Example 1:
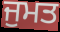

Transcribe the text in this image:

ਜੁਮਤ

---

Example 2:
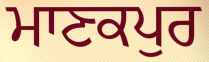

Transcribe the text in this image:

ਮਾਣਕਪੁਰ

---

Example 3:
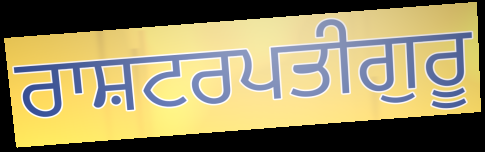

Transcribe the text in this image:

ਰਾਸ਼ਟਰਪਤੀਗੁਰੂ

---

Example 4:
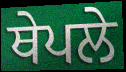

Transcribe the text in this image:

ਥੇਪਲੇ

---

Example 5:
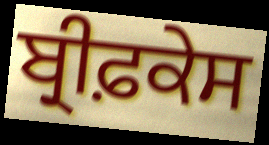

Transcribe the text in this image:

ਬ੍ਰੀਫ਼ਕੇਸ